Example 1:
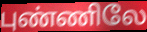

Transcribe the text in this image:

புண்ணிலே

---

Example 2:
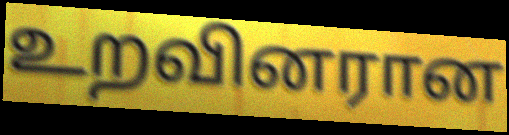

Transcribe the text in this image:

உறவினரான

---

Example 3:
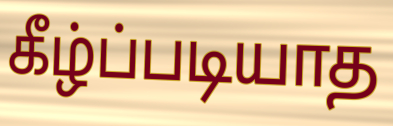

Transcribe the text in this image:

கீழ்ப்படியாத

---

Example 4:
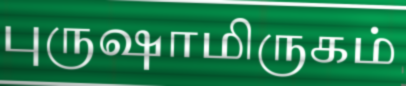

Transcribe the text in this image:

புருஷாமிருகம்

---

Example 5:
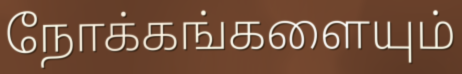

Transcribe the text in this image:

நோக்கங்களையும்